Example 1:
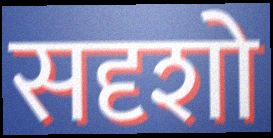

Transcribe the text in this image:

सदृशो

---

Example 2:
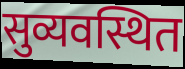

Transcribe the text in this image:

सुव्यवस्थित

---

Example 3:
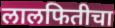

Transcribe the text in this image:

लालफितीचा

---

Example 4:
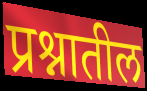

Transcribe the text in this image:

प्रश्नातील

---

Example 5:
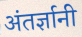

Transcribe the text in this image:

अंतर्ज्ञानी